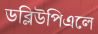
ডব্লিউপিএলে